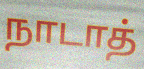
நாடாத்